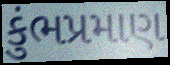
કુંભપ્રમાણ